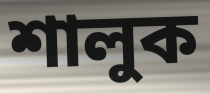
শালুক